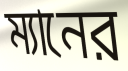
ম্যানের